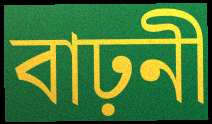
বাঢ়নী